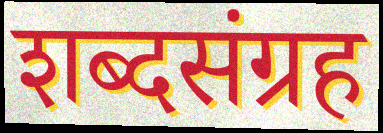
शब्दसंग्रह